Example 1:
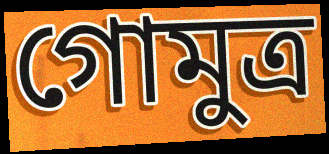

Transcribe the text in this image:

গোমুত্ৰ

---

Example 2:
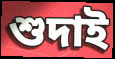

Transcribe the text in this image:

শুদাই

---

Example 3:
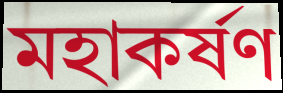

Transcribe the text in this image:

মহাকৰ্ষণ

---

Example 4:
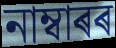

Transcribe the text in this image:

নাম্বাৰৰ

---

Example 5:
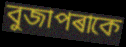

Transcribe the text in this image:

বুজাপৰাকে